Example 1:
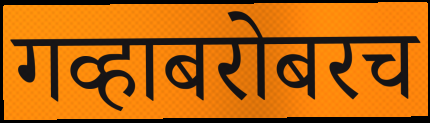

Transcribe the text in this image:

गव्हाबरोबरच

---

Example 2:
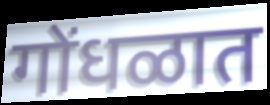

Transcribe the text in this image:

गोंधळात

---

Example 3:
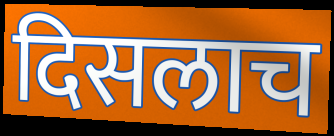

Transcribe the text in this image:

दिसलाच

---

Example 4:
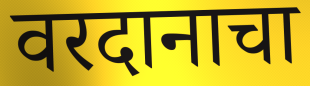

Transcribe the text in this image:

वरदानाचा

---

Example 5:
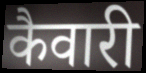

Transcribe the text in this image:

कैवारी